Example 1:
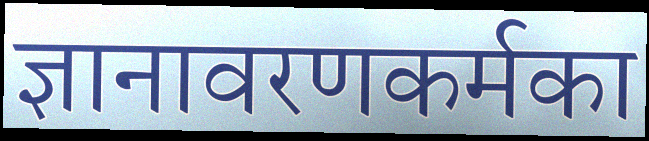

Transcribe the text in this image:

ज्ञानावरणकर्मका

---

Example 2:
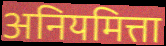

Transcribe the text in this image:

अनियमित्ता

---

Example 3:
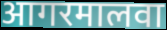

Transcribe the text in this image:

आगरमालवा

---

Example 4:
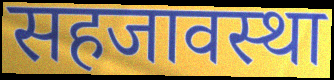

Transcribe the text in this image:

सहजावस्था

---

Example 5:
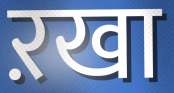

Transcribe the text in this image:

ऱखा